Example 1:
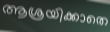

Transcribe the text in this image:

ആശ്രയിക്കാതെ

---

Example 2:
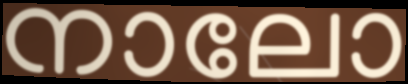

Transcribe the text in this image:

നാലോ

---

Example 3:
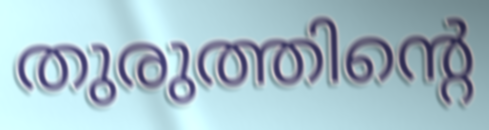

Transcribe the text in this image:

തുരുത്തിന്റെ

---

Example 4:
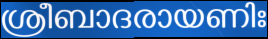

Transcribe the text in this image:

ശ്രീബാദരായണിഃ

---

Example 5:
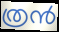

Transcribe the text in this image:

ത്രൻ